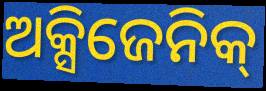
ଅକ୍ସିଜେନିକ୍